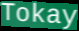
Tokay